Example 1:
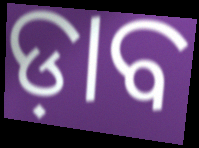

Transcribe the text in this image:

ଡ଼ାବ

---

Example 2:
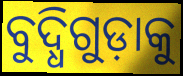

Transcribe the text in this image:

ବୁଦ୍ଧିଗୁଡ଼ାକୁ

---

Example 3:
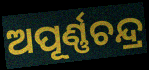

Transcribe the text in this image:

ଅପୂର୍ଣ୍ଣଚନ୍ଦ୍ର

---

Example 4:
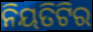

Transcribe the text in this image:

ନିୟତିଟିର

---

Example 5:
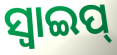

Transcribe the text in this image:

ସ୍ୱାଇପ୍